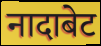
नादाबेट